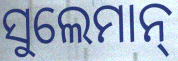
ସୁଲେମାନ୍